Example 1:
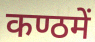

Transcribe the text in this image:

कण्ठमें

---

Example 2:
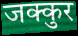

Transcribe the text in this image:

जक्कुर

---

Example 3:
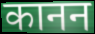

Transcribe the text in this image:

कानन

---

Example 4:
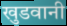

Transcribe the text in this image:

खुडवानी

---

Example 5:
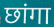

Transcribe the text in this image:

छांगा